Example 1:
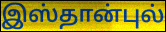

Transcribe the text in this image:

இஸ்தான்புல்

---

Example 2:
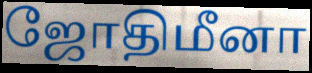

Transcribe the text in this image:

ஜோதிமீனா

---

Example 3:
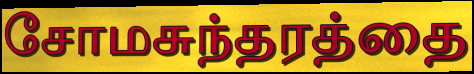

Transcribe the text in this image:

சோமசுந்தரத்தை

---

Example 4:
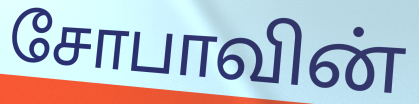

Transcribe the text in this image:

சோபாவின்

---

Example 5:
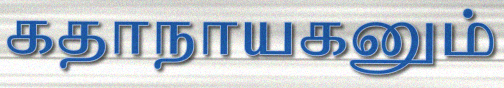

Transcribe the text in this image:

கதாநாயகனும்